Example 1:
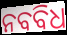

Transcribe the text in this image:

ନବବିଧ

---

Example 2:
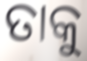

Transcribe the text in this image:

ତାକୁ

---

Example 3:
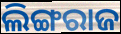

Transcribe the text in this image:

ଲିଙ୍ଗରାଜ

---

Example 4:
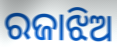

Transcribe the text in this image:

ରଜାଝିଅ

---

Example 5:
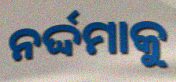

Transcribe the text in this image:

ନର୍ଦ୍ଦମାକୁ